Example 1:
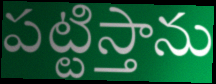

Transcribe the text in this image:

పట్టిస్తాను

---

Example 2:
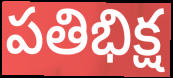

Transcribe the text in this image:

పతిభిక్ష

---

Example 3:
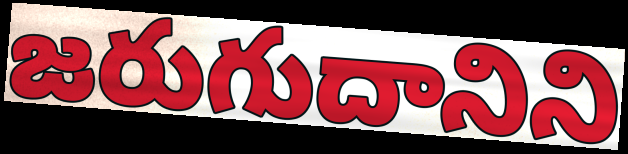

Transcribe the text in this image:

జరుగుదానిని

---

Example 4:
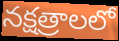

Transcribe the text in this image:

నక్షత్రాలలో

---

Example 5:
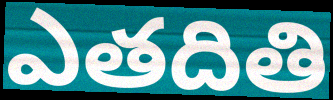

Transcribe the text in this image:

ఎతదితి